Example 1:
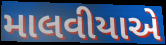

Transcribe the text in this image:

માલવીયાએ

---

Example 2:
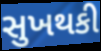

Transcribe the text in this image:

સુખથકી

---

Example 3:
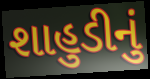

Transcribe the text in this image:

શાહુડીનું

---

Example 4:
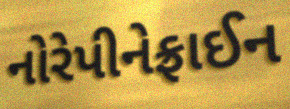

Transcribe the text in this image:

નોરેપીનેફ્રાઈન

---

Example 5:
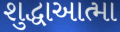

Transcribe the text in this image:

શુદ્ધાઆત્મા